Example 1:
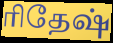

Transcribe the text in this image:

ரிதேஷ்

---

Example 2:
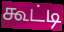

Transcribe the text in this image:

கூட்டி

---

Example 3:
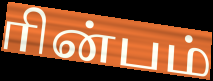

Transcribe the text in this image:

ரின்பம்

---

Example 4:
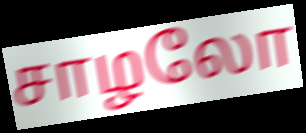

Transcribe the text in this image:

சாழலோ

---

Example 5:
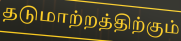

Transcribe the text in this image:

தடுமாற்றத்திற்கும்